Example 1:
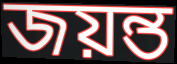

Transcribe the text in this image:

জয়ন্ত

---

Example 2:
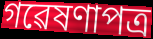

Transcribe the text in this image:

গৱেষণাপত্ৰ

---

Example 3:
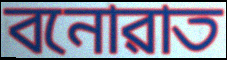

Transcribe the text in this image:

বনোৱাত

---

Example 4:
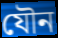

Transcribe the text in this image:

যৌন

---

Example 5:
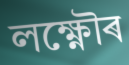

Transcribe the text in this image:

লক্ষ্ণৌৰ